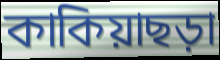
কাকিয়াছড়া